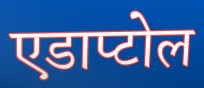
एडाप्टोल